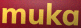
muka